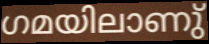
ഗമയിലാണു്